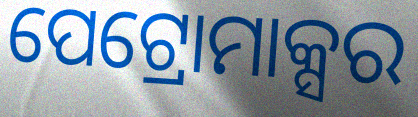
ପେଟ୍ରୋମାକ୍ସର